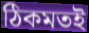
ঠিকমতই